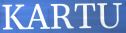
KARTU